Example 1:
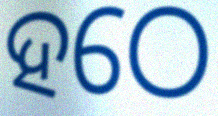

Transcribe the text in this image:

ହଠେ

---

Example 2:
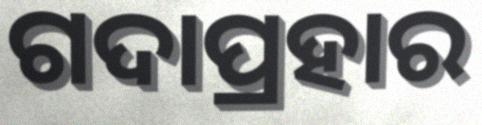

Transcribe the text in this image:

ଗଦାପ୍ରହାର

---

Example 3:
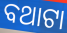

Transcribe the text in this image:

ବଥାଟା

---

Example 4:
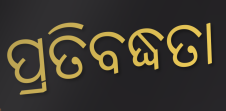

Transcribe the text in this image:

ପ୍ରତିବଦ୍ଧତା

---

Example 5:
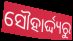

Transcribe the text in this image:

ସୌହାର୍ଦ୍ଦ୍ୟରୁ